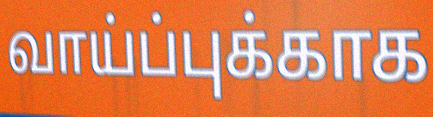
வாய்ப்புக்காக